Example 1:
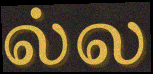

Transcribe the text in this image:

ல்ல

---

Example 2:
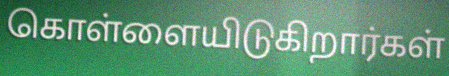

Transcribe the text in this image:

கொள்ளையிடுகிறார்கள்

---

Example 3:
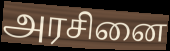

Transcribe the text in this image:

அரசினை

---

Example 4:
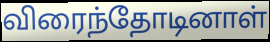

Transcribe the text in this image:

விரைந்தோடினாள்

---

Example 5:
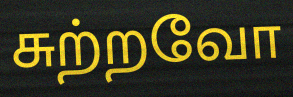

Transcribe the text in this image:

சுற்றவோ